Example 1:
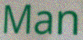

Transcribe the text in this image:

Man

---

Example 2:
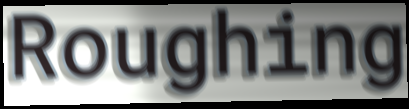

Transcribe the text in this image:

Roughing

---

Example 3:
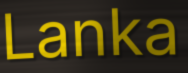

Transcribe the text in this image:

Lanka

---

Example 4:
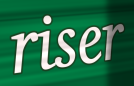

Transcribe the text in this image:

riser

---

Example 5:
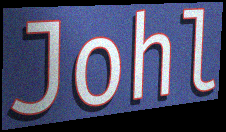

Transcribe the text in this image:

Johl